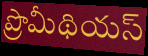
ప్రొమీథియస్